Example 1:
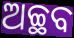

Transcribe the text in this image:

ଅଚ୍ଛବ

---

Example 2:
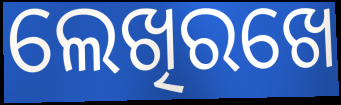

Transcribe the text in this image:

ଲେଖିରଖେ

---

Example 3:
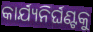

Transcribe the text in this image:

କାର୍ଯ୍ୟନିର୍ଘଣ୍ଟକୁ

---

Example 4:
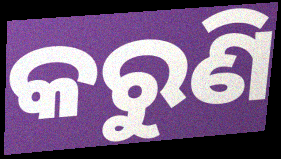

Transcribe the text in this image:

କରୁଣି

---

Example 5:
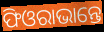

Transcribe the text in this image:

ଫିଓରାଭାନ୍ତେ